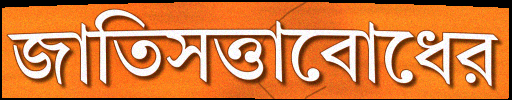
জাতিসত্তাবোধের